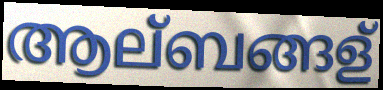
ആല്ബങ്ങള്